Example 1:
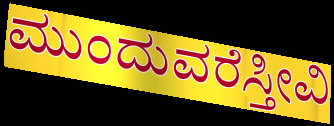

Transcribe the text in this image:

ಮುಂದುವರೆಸ್ತೀವಿ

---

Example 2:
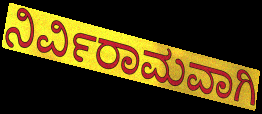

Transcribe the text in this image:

ನಿರ್ವಿರಾಮವಾಗಿ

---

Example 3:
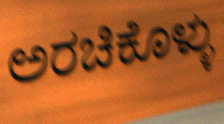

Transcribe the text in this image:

ಅರಚಿಕೊಳ್ಳು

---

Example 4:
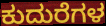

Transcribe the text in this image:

ಕುದುರೆಗಳ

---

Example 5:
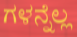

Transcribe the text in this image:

ಗಳನ್ನೆಲ್ಲ